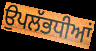
ਉਪਲੱਭਧੀਆਂ